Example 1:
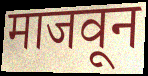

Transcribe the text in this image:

माजवून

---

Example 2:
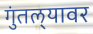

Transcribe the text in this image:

गुंतल्यावर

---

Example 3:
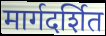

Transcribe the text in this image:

मार्गदर्शित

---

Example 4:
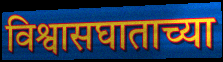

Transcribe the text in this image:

विश्वासघाताच्या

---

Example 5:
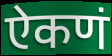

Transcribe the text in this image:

ऐकणं